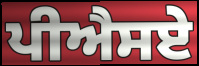
ਪੀਐਸਏ